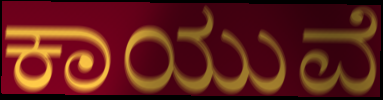
ಕಾಯುವೆ